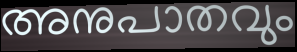
അനുപാതവും